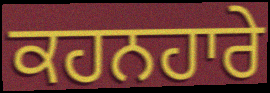
ਕਹਨਹਾਰੇ